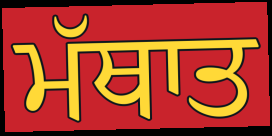
ਮੱਥਾਤ